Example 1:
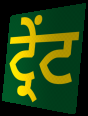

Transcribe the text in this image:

ਟ੍ਰੇਂਟ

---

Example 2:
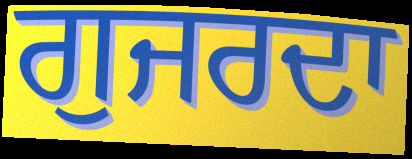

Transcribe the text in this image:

ਗੁਜਰਦਾ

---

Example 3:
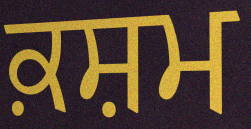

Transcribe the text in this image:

ਕ਼ਸ਼ਮ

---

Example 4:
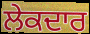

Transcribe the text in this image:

ਲੇਕਦਾਰ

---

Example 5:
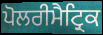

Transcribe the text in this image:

ਪੋਲਰੀਮੈਟ੍ਰਿਕ